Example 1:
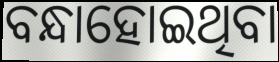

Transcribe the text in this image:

ବନ୍ଧାହୋଇଥିବା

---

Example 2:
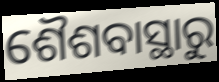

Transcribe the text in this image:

ଶୈଶବାସ୍ଥାରୁ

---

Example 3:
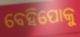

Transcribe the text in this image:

ବେହିପୋକୁ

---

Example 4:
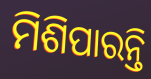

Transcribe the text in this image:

ମିଶିପାରନ୍ତି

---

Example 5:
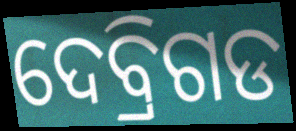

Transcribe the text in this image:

ଦେବ୍ରିଗଡ